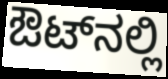
ಔಟ್‌ನಲ್ಲಿ